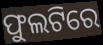
ଫୁଲଟିରେ